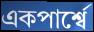
একপার্শ্বে